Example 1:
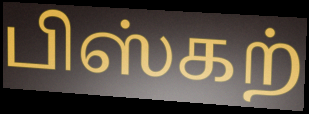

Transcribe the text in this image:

பிஸ்கற்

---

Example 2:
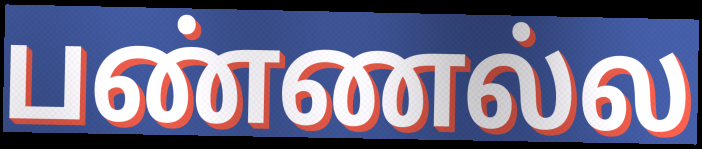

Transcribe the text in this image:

பண்ணல்ல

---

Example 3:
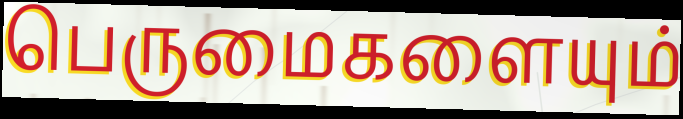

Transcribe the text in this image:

பெருமைகளையும்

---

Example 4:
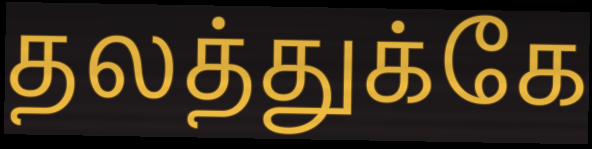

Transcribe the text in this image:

தலத்துக்கே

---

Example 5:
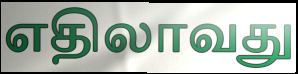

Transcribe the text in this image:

எதிலாவது